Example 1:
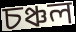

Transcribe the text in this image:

চঞ্চল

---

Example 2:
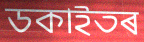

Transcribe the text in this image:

ডকাইতৰ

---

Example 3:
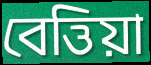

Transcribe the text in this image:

বেত্তিয়া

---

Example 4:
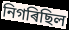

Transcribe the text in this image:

নিগৰিছিল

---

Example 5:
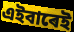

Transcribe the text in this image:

এইবাৰেই